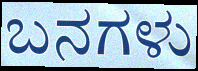
ಬನಗಳು